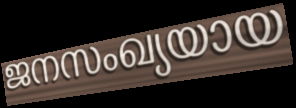
ജനസംഖ്യയായ